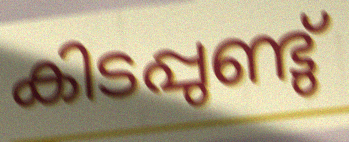
കിടപ്പുണ്ടു്